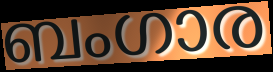
ബംഗാര